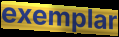
exemplar